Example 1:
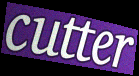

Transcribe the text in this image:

cutter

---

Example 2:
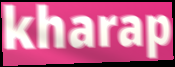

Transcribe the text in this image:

kharap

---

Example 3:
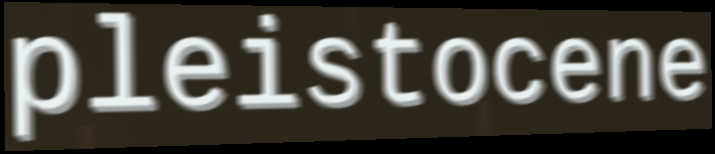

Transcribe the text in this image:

pleistocene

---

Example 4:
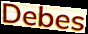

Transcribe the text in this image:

Debes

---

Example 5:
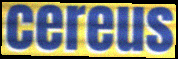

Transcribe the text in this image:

cereus